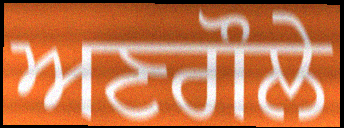
ਅਣਗੌਲੇ